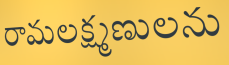
రామలక్ష్మణులను